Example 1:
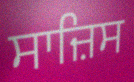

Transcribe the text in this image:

ਸਾਜ਼ਿਸ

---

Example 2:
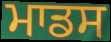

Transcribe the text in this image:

ਮਾਡਸ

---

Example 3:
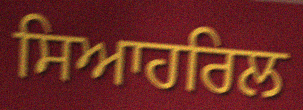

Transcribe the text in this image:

ਸਿਆਹਰਿਲ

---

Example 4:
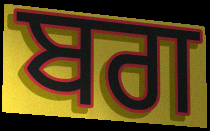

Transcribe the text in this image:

ਬਗ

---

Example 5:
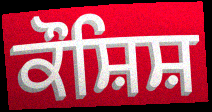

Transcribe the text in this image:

ਕੌਸ਼ਿਸ਼